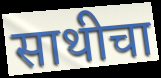
साथीचा